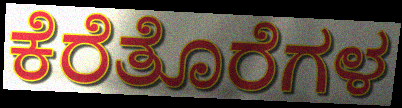
ಕೆರೆತೊರೆಗಳ